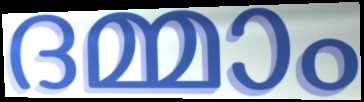
ദമ്മാം